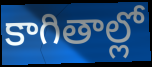
కాగితాల్లో